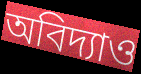
অবিদ্যাও